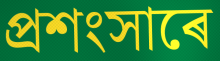
প্ৰশংসাৰে